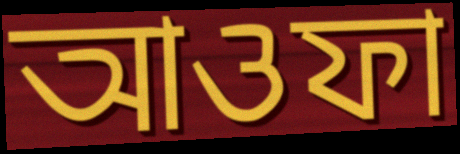
আওফা